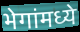
भेगांमध्ये